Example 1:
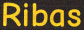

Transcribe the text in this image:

Ribas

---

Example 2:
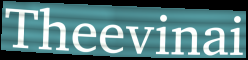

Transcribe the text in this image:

Theevinai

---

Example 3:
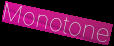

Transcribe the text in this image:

Monotone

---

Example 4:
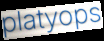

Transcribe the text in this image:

platyops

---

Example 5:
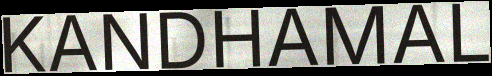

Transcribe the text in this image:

KANDHAMAL